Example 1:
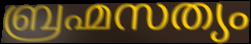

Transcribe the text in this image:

ബ്രഹ്മസത്യം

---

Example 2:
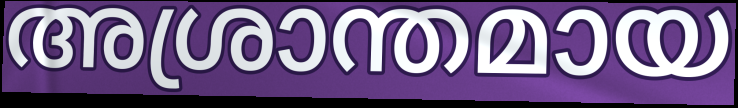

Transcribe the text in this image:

അശ്രാന്തമായ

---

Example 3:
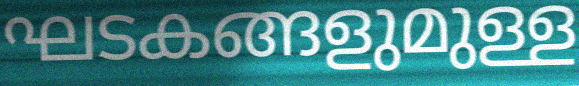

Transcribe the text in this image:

ഘടകങ്ങളുമുള്ള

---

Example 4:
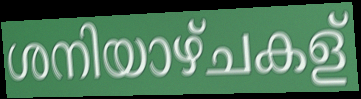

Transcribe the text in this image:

ശനിയാഴ്ചകള്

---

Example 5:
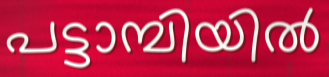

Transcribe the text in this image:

പട്ടാമ്പിയിൽ